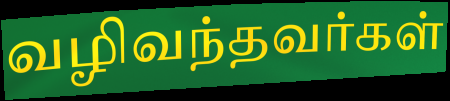
வழிவந்தவர்கள்